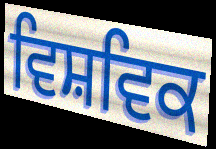
ਵਿਸ਼ਵਿਕ